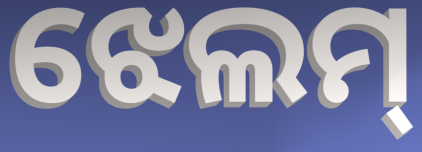
ଝେଲମ୍